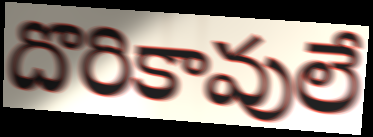
దొరికావులే